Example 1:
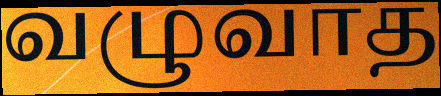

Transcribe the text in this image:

வழுவாத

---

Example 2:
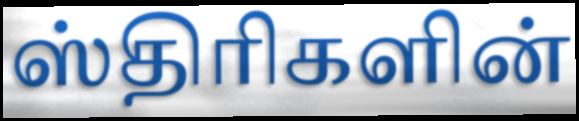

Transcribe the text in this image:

ஸ்திரிகளின்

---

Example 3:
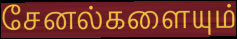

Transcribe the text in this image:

சேனல்களையும்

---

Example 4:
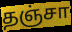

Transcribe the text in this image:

தஞ்சா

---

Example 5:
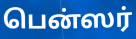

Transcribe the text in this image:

பென்ஸர்